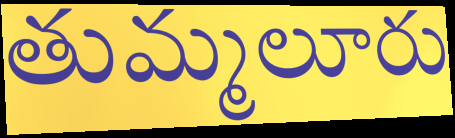
తుమ్మలూరు